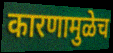
कारणामुळेच